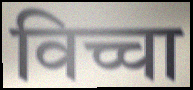
विच्चा